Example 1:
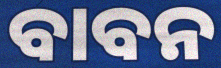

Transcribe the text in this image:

ବାବନ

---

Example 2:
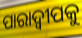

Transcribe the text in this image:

ପାରାଦ୍ୱୀପକୁ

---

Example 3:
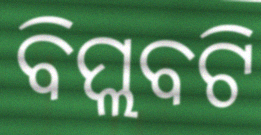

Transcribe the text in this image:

ବିପ୍ଲବଟି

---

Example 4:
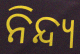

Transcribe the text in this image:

ନିନ୍ଦ୍ୟ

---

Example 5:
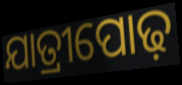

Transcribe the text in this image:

ଯାତ୍ରୀପୋଢ଼